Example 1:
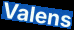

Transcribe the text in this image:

Valens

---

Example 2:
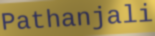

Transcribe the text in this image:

Pathanjali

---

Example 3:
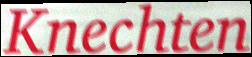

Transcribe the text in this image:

Knechten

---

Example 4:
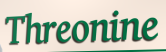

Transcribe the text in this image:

Threonine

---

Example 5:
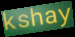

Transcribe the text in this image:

kshay